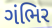
ગંભિર